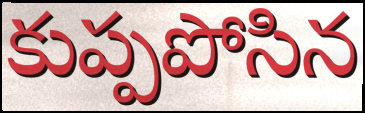
కుప్పపోసిన